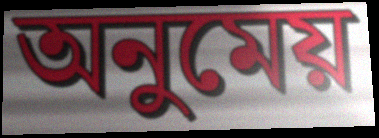
অনুমেয়